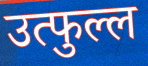
उत्फुल्ल